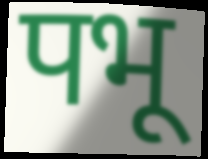
पभू